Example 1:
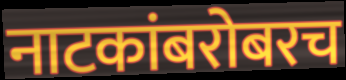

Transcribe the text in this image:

नाटकांबरोबरच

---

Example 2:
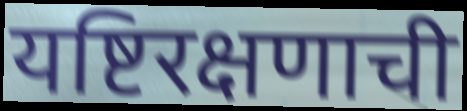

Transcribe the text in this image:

यष्टिरक्षणाची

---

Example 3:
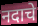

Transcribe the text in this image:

नदाचे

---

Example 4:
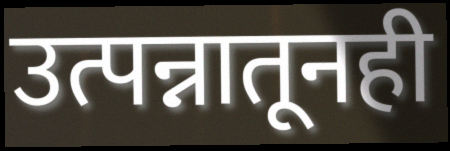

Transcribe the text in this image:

उत्पन्नातूनही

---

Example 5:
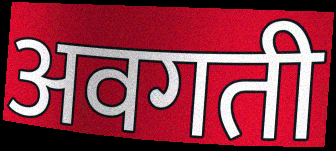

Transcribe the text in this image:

अवगती